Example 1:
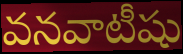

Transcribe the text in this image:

వనవాటీషు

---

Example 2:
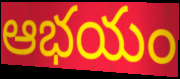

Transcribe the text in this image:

ఆభయం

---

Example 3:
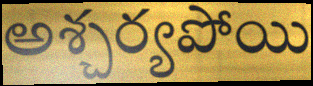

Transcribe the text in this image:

అశ్చర్యపోయి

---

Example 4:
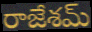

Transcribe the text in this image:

రాజేశమ్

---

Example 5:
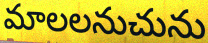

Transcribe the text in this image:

మాలలనుచును